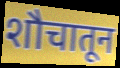
शौचातून